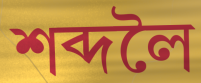
শব্দলৈ